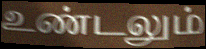
உண்டலும்